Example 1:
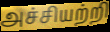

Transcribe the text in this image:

அச்சியற்றி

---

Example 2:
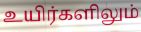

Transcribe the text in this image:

உயிர்களிலும்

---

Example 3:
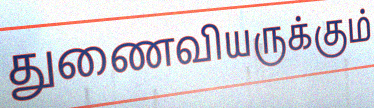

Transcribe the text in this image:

துணைவியருக்கும்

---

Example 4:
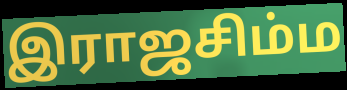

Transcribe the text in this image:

இராஜசிம்ம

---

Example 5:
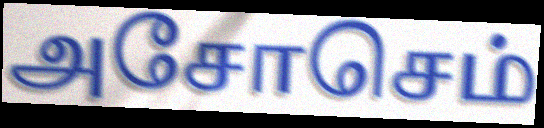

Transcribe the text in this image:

அசோசெம்